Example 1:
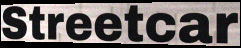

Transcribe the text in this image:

Streetcar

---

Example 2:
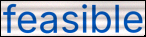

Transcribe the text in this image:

feasible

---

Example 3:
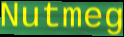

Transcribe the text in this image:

Nutmeg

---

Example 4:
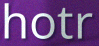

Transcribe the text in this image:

hotr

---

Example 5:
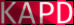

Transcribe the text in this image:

KAPD